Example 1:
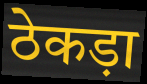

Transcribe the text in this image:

ठेकड़ा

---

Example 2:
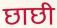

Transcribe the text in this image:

छाछी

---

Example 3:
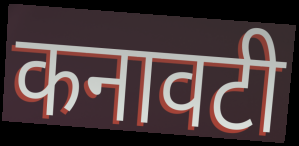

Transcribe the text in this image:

कनावटी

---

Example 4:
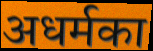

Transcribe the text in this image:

अधर्मका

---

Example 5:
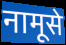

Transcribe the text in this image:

नामूसे